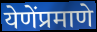
येणेंप्रमाणे